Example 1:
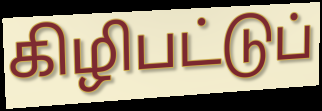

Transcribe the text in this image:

கிழிபட்டுப்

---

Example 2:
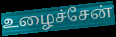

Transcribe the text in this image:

உழைச்சேன்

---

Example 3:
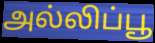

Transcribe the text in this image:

அல்லிப்பூ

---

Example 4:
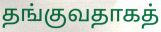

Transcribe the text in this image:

தங்குவதாகத்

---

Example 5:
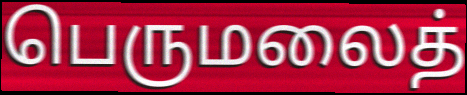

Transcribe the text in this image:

பெருமலைத்